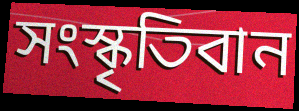
সংস্কৃতিবান